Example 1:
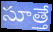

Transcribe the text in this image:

సూత్తే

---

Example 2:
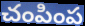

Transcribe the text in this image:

చంపింప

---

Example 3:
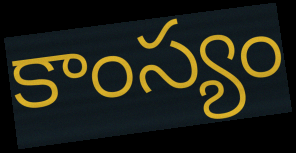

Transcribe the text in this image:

కాంస్యం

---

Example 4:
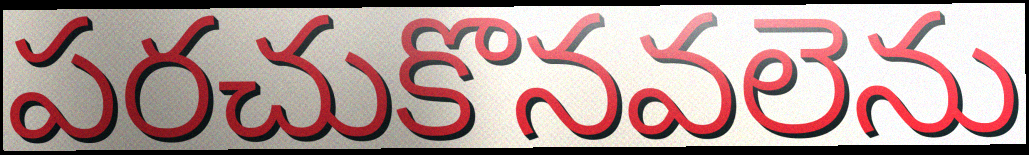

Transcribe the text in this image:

పరచుకొనవలెను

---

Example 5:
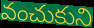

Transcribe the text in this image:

వంచుకుని